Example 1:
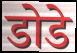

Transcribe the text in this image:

डोडे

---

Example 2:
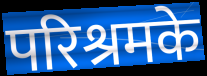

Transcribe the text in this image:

परिश्रमके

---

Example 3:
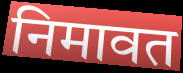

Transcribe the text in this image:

निमावत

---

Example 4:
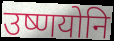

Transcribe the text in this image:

उष्णयोनि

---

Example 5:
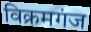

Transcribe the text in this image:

विक्रमगंज